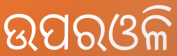
ଉପରଓଳି